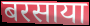
बरसाया